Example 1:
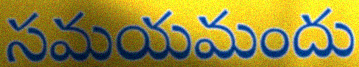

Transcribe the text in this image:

సమయమందు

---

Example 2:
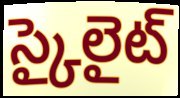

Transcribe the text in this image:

స్కైలైట్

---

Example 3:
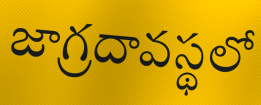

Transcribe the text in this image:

జాగ్రదావస్థలో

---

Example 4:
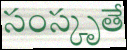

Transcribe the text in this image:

సంస్కృతే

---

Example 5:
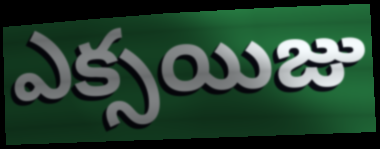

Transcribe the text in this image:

ఎక్సయిజు